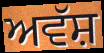
ਅਵੱਸ਼